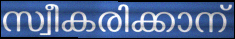
സ്വീകരിക്കാന്